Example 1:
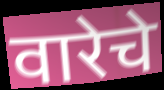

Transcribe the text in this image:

वारेचे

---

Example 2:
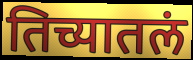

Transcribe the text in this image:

तिच्यातलं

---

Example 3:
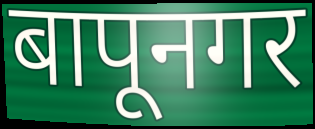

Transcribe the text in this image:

बापूनगर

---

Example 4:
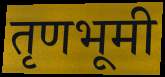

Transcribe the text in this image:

तृणभूमी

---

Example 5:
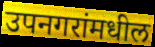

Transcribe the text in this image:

उपनगरांमधील